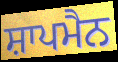
ਸ਼ਾਪਮੈਨ